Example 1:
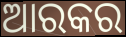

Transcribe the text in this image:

ଆରକର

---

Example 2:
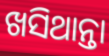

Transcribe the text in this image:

ଖସିଥାନ୍ତା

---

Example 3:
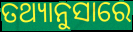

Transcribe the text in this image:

ତଥ୍ୟାନୁସାରେ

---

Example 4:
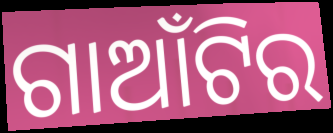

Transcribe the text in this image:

ଗାଆଁଟିର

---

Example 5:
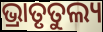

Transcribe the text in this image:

ଭ୍ରାତୃତୁଲ୍ୟ